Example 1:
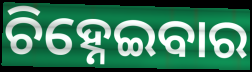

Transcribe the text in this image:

ଚିହ୍ନେଇବାର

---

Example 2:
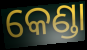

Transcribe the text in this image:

କେଣ୍ଡା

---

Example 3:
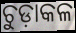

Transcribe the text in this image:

ଚୁଡ଼ାକଳ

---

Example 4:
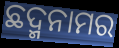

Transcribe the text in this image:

ଛଦ୍ମନାମର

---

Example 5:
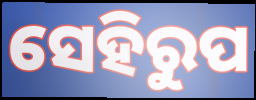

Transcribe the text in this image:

ସେହିରୁପ